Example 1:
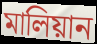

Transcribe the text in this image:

মালিয়ান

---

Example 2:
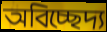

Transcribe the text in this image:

অবিচ্ছেদ্য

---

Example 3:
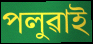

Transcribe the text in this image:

পলুৱাই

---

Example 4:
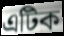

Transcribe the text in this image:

এটিক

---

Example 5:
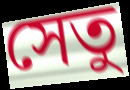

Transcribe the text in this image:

সেতু